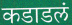
कडाडलं